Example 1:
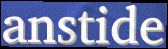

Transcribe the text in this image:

anstide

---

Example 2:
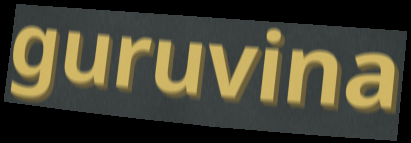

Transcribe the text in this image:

guruvina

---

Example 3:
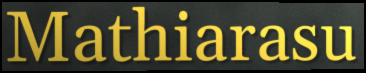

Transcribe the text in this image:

Mathiarasu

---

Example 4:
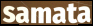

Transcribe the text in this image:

samata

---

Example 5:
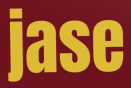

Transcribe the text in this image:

jase